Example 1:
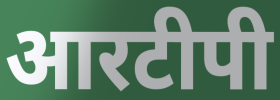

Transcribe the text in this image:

आरटीपी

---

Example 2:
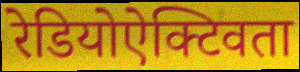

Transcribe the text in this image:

रेडियोऐक्टिवता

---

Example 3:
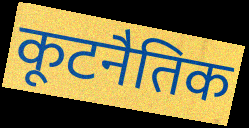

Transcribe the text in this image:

कूटनैतिक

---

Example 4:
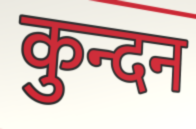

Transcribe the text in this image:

कुन्दन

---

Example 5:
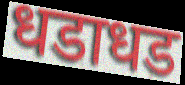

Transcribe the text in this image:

धडाधड